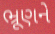
ભ્રૂણને